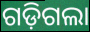
ଗଡ଼ିଗଲା